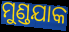
ମୁଣ୍ଡଯାକ